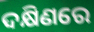
ଦକ୍ଷିଣରେ